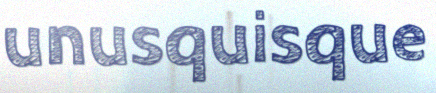
unusquisque